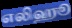
எலிஹூ